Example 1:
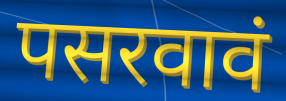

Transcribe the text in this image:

पसरवावं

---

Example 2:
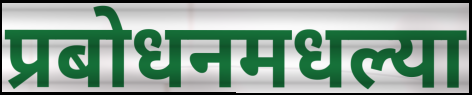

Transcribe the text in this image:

प्रबोधनमधल्या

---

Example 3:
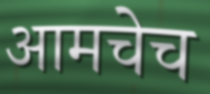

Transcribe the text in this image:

आमचेच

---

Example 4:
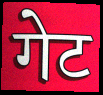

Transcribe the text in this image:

गेट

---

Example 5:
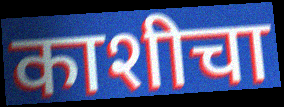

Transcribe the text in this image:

काशीचा